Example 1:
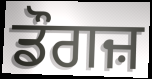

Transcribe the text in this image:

ਡੌਗਜ਼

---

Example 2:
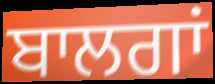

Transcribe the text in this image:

ਬਾਲਗਾਂ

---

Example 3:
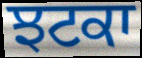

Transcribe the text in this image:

ਝਟਕਾ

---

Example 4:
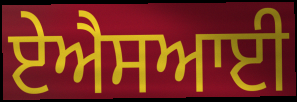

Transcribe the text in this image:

ਏਐਸਆਈ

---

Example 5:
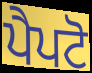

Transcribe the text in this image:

ਪੈਪਟੋ